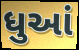
ધુઆં